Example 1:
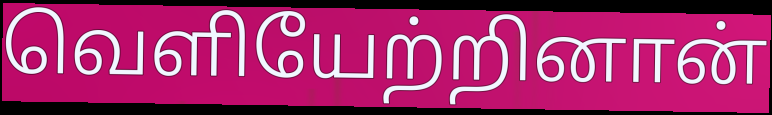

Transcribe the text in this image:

வெளியேற்றினான்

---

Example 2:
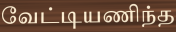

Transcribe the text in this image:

வேட்டியணிந்த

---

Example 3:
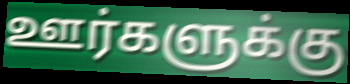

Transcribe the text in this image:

ஊர்களுக்கு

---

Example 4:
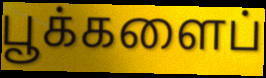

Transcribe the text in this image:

பூக்களைப்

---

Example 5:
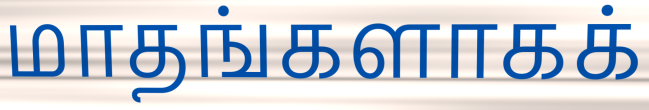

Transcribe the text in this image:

மாதங்களாகக்